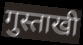
गुस्ताखी